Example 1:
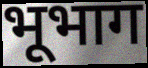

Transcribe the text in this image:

भूभाग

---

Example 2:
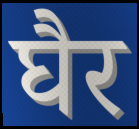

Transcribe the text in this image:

घैर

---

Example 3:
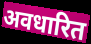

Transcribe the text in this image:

अवधारित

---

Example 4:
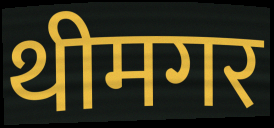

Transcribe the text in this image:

थीमगर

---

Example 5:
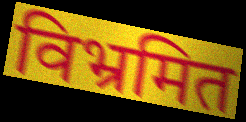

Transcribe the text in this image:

विभ्रमित